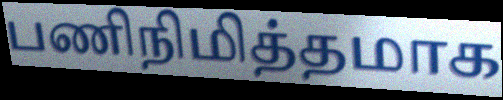
பணிநிமித்தமாக